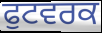
ਫੁਟਵਰਕ